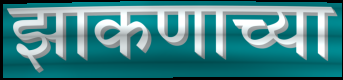
झाकणाच्या